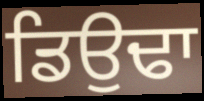
ਡਿਉਢਾ